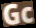
Gc